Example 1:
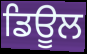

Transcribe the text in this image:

ਡਿਊਲ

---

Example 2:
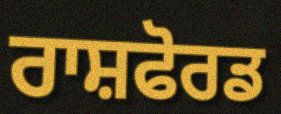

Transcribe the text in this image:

ਰਾਸ਼ਫੋਰਡ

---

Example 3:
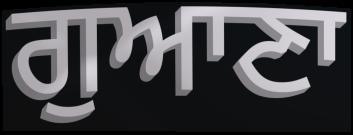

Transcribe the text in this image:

ਗੁਆਣਾ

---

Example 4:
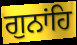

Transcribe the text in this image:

ਗੁਨਾਂਹਿ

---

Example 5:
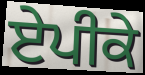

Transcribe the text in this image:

ਏਪੀਕੇ